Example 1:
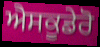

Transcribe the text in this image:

ਐਸਕੂਡੇਰੋ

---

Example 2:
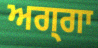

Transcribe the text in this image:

ਅਗ੍ਗਾ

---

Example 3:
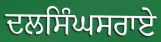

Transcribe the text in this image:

ਦਲਸਿੰਘਸਰਾਏ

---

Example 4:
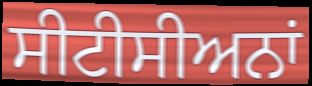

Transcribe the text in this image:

ਸੀਟੀਸੀਅਨਾਂ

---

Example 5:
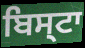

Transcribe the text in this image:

ਬਿਸ੍ਟਾ